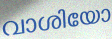
വാശിയോ